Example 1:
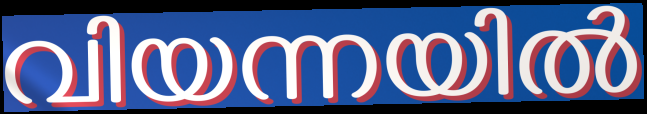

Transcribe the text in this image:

വിയന്നയിൽ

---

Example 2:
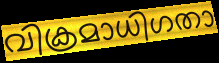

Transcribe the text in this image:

വിക്രമാധിഗതാ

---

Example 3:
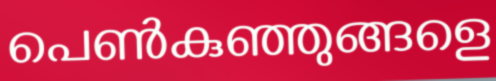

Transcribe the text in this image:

പെൺകുഞ്ഞുങ്ങളെ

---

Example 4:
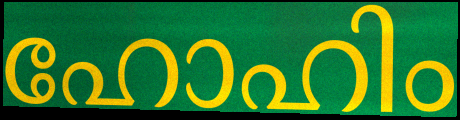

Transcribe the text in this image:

ഹോഹിം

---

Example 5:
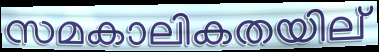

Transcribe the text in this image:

സമകാലികതയില്